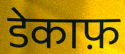
डेकाफ़